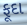
ફૂદા